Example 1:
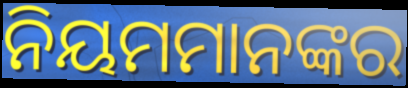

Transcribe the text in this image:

ନିୟମମାନଙ୍କର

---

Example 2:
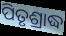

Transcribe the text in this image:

ପିତୃଶ୍ରାଦ୍ଧ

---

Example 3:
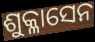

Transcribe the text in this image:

ଶୁକ୍ଳାସେନ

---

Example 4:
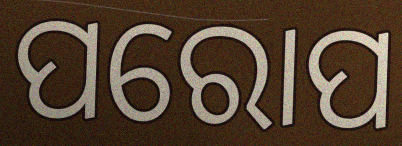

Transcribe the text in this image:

ପରୋପ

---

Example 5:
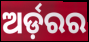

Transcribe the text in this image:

ଅର୍ଡ଼ରର